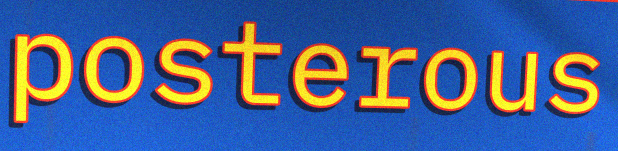
posterous